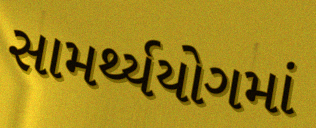
સામર્થ્યયોગમાં